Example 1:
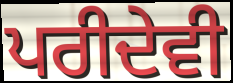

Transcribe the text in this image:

ਪਰੀਦੇਵੀ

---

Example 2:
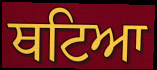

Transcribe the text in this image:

ਥਟਿਆ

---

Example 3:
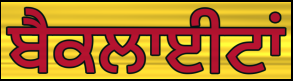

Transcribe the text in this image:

ਬੈਕਲਾਈਟਾਂ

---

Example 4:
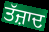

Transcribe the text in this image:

ਤੱਜ਼ਾਦ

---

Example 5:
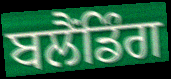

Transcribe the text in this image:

ਬਲੈਂਡਿੰਗ